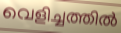
വെളിച്ചത്തിൽ